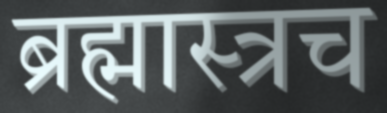
ब्रह्मास्त्रच